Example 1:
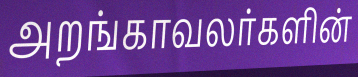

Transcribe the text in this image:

அறங்காவலர்களின்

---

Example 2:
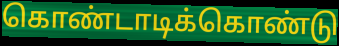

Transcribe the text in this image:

கொண்டாடிக்கொண்டு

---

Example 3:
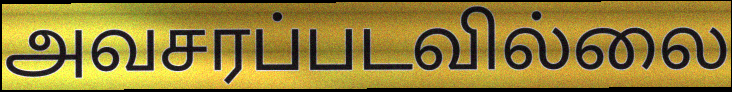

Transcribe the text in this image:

அவசரப்படவில்லை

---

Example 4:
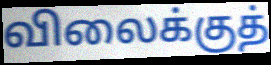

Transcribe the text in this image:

விலைக்குத்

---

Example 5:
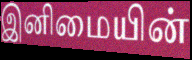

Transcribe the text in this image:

இனிமையின்